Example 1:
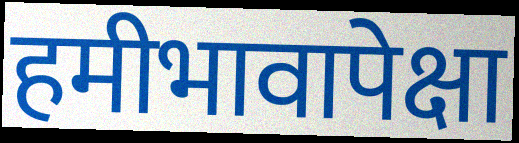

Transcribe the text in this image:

हमीभावापेक्षा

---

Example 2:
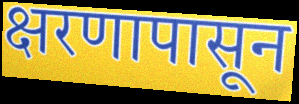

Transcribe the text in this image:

क्षरणापासून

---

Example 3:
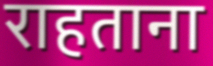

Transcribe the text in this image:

राहताना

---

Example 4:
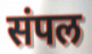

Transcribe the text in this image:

संपल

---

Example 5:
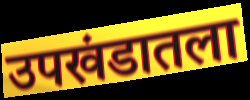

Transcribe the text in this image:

उपखंडातला